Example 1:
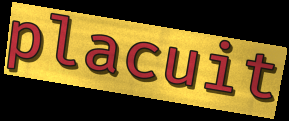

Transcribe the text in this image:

placuit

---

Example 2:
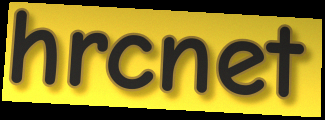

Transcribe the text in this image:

hrcnet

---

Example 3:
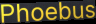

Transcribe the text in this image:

Phoebus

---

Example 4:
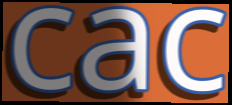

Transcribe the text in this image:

cac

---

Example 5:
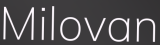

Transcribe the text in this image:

Milovan